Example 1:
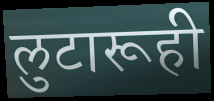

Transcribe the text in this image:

लुटारूही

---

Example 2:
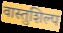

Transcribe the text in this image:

वास्तुशिल्प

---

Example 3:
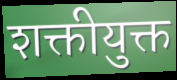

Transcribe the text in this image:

शक्तीयुक्त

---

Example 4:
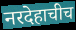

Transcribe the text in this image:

नरदेहाचीच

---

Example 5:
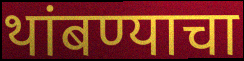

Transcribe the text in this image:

थांबण्याचा